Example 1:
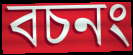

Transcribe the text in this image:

বচনং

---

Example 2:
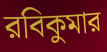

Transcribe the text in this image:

রবিকুমার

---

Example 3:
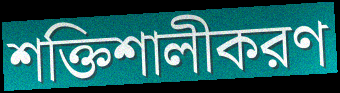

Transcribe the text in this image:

শক্তিশালীকরণ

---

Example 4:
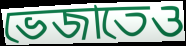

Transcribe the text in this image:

ভেজাতেও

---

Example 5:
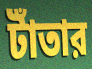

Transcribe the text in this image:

টাঁতার